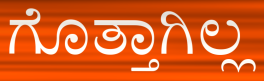
ಗೊತ್ತಾಗಿಲ್ಲ